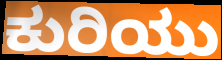
ಕುರಿಯು